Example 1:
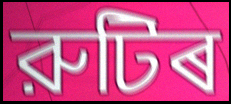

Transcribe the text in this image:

ৰুটিৰ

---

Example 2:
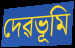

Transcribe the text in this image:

দেৱভূমি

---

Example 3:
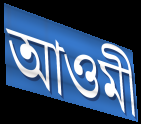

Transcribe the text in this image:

আওমী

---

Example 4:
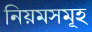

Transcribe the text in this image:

নিয়মসমূহ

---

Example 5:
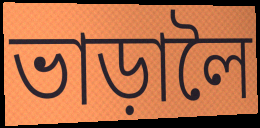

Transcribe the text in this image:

ভাড়ালৈ